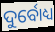
ଦୁର୍ବୋଧ୍ୟ